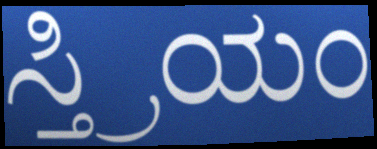
ಸ್ತ್ರಿಯಂ